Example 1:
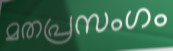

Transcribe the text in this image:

മതപ്രസംഗം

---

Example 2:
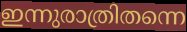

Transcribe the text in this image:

ഇന്നുരാത്രിതന്നെ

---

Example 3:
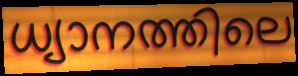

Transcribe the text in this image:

ധ്യാനത്തിലെ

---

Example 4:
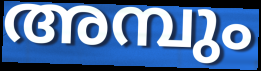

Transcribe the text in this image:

അമ്പും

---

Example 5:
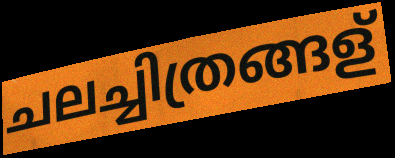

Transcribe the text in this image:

ചലച്ചിത്രങ്ങള്